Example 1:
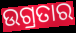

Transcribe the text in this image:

ଉଗ୍ରତାର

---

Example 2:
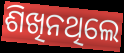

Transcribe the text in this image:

ଶିଖିନଥିଲେ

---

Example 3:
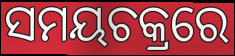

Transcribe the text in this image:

ସମୟଚକ୍ରରେ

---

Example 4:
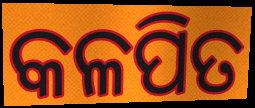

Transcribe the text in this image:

କଳପିତ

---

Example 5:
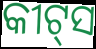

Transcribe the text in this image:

କୀଟ୍‌ସ